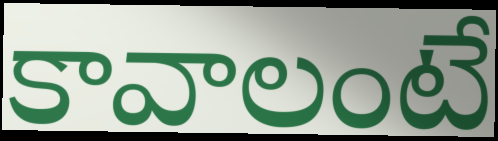
కావాలంటే